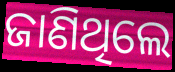
ଜାଣିଥିଲେ